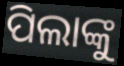
ପିଲାଙ୍କୁ